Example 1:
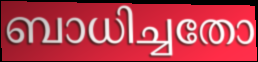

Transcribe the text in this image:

ബാധിച്ചതോ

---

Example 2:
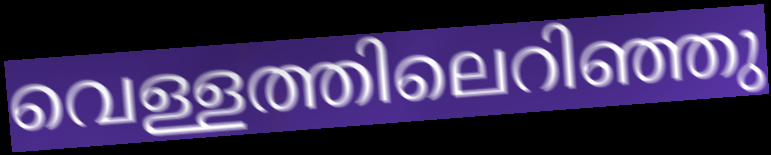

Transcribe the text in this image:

വെള്ളത്തിലെറിഞ്ഞു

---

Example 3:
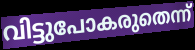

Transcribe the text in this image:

വിട്ടുപോകരുതെന്ന്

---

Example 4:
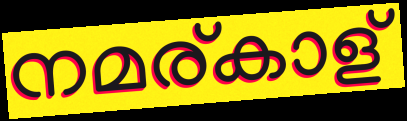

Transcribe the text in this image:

നമര്കാള്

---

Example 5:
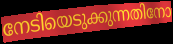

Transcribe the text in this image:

നേടിയെടുക്കുന്നതിനോ